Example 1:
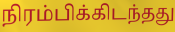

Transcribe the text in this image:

நிரம்பிக்கிடந்தது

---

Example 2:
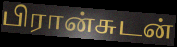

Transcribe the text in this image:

பிரான்சுடன்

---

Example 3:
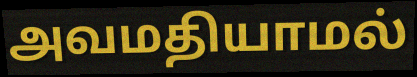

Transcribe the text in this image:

அவமதியாமல்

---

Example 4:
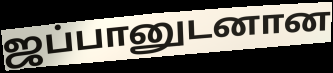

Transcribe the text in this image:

ஜப்பானுடனான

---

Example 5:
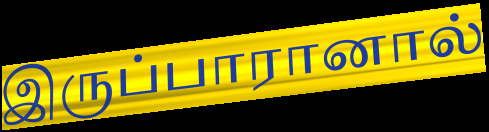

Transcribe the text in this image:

இருப்பாரானால்